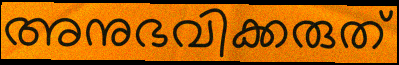
അനുഭവിക്കരുത്